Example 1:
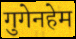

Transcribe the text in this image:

गुगेनहेम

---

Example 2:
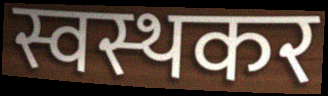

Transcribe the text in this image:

स्वस्थकर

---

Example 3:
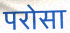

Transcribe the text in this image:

परोसा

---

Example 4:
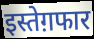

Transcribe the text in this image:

इस्तेग़फार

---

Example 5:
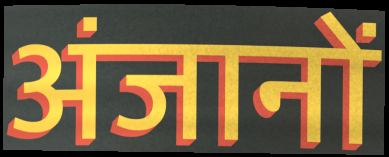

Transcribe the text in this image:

अंजानों